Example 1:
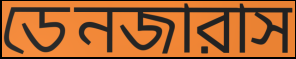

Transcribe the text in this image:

ডেনজারাস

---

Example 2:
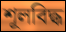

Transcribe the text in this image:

শূলবিদ্ধ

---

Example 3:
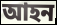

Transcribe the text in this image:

আহন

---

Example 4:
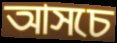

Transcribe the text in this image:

আসচে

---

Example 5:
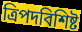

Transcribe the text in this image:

ত্রিপদবিশিষ্ট